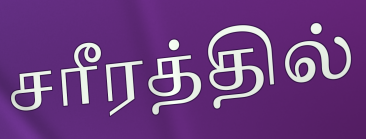
சரீரத்தில்